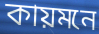
কায়মনে